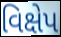
વિક્ષેપ